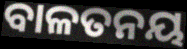
ବାଳତନୟ